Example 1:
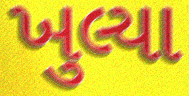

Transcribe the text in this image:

ખુલ્યા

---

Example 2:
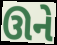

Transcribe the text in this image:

ઊને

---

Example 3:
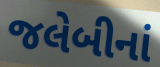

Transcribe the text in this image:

જલેબીનાં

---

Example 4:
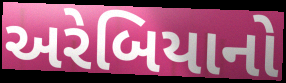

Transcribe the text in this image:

અરેબિયાનો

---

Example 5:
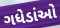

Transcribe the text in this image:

ગધેડાંઓ